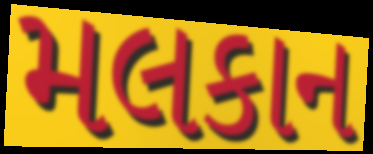
મલકાન